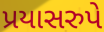
પ્રયાસરુપે